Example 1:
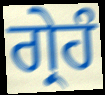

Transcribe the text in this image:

ਗ੍ਰੇਹੰ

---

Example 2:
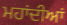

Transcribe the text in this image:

ਮਹਾਂਦੀਆਂ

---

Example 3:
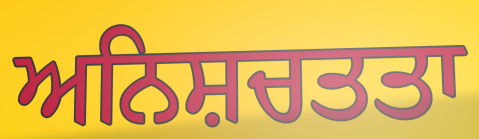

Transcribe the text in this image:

ਅਨਿਸ਼ਚਤਤਾ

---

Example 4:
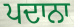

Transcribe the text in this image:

ਪਦਾਨਾ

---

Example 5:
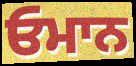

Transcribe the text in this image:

ਓਮਾਨ